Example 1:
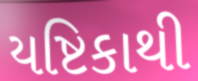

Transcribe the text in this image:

યષ્ટિકાથી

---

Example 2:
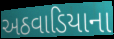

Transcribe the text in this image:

અઠવાડિયાના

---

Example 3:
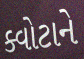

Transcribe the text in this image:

ક્વોટાને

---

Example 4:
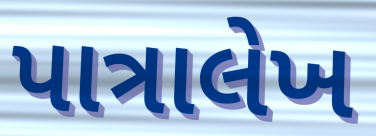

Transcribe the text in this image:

પાત્રાલેખ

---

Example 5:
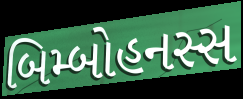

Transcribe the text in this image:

બિમ્બોહનસ્સ